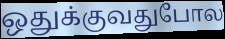
ஒதுக்குவதுபோல